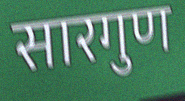
सारगुण